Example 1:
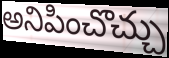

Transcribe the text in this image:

అనిపించొచ్చు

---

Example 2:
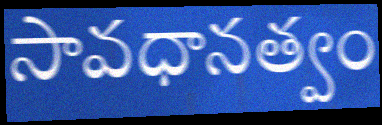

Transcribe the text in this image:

సావధానత్వం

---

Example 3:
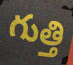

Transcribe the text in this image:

గుత్తి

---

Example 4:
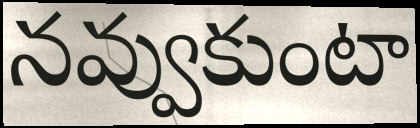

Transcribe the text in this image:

నవ్వుకుంటా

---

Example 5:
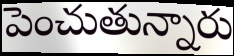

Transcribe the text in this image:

పెంచుతున్నారు